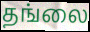
தங்லை